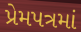
પ્રેમપત્રમાં